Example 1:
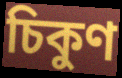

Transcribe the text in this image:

চিকুণ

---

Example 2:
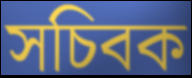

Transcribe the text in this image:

সচিবক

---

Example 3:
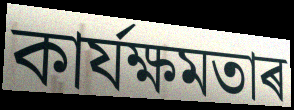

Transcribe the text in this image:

কাৰ্যক্ষমতাৰ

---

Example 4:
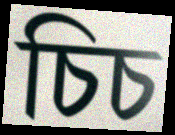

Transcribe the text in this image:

চিচ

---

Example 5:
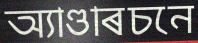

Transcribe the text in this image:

অ্যাণ্ডাৰচনে